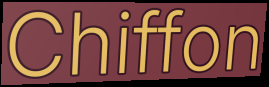
Chiffon